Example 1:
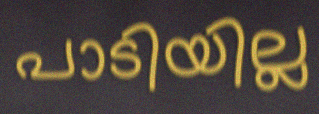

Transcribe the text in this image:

പാടിയില്ല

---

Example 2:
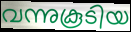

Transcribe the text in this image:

വന്നുകൂടിയ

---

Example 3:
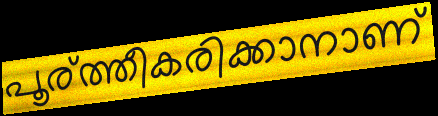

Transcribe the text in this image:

പൂര്ത്തീകരിക്കാനാണ്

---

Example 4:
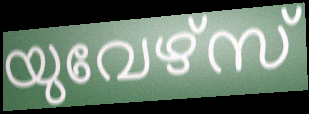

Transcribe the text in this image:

യുവേഴ്സ്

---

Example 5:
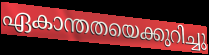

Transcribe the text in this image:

ഏകാന്തതയെക്കുറിച്ചു